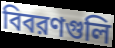
বিবরণগুলি